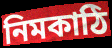
নিমকাঠি